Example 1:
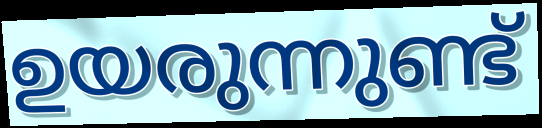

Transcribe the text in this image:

ഉയരുന്നുണ്ട്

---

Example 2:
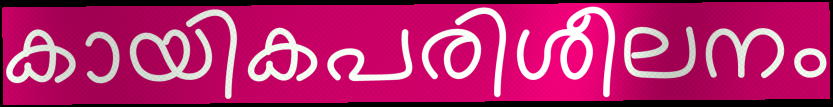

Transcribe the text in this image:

കായികപരിശീലനം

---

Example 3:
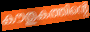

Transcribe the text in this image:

കൗതുകത്തിന്റെ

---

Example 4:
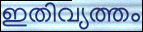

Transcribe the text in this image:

ഇതിവ്യത്തം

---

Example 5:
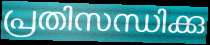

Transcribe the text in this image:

പ്രതിസന്ധിക്കു